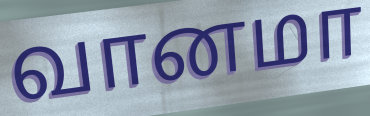
வானமா